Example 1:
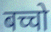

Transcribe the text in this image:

बच्चो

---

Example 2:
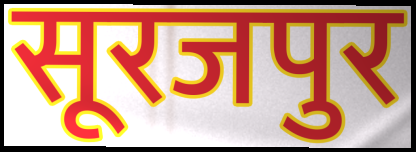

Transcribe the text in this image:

सूरजपुर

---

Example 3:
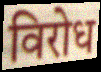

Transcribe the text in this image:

विरोध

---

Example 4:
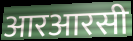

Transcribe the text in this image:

आरआरसी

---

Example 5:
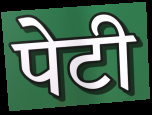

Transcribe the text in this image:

पेटी